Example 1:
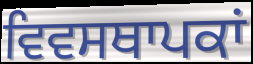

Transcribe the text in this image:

ਵਿਵਸਥਾਪਕਾਂ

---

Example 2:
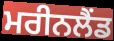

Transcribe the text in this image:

ਮਰੀਨਲੈਂਡ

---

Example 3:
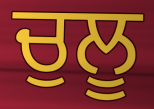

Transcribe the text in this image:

ਚੁਲੂ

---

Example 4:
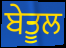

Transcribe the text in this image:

ਬੇਤੂਲ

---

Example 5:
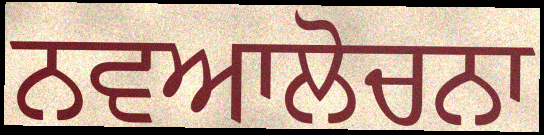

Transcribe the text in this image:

ਨਵਆਲੋਚਨਾ